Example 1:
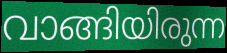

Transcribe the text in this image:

വാങ്ങിയിരുന്ന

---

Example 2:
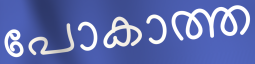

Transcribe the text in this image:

പോകാത്ത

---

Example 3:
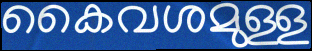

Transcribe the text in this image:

കൈവശമുള്ള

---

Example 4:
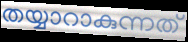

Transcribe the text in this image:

തയ്യാറാകുന്നത്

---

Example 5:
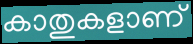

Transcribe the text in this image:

കാതുകളാണ്